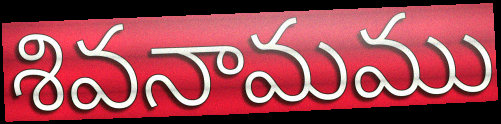
శివనామము